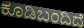
ಕೂಡಿಬಂದಿದೆ